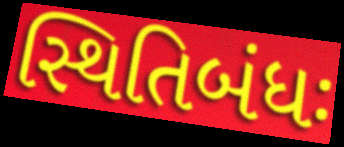
સ્થિતિબંધઃ